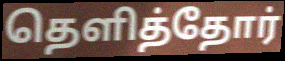
தெளித்தோர்